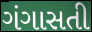
ગંગાસતી